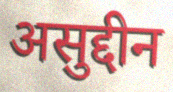
असुद्दीन